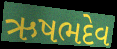
ઋષભદેવ